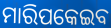
ମାରିପକେଇବ